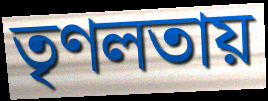
তৃণলতায়